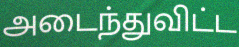
அடைந்துவிட்ட